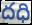
దధి